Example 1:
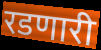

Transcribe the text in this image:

रडणारी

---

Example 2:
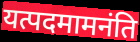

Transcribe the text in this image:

यत्पदमामनंति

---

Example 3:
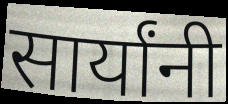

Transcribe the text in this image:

सार्यांनी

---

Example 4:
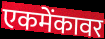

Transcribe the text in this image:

एकमेंकावर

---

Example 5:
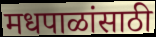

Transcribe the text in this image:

मधपाळांसाठी